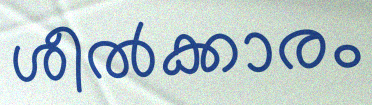
ശീൽക്കാരം